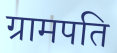
ग्रामपति